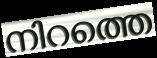
നിറത്തെ